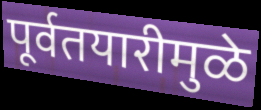
पूर्वतयारीमुळे